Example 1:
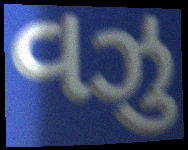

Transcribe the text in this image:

વઝુ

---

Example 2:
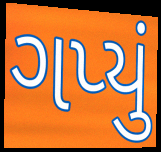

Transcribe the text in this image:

ગપ્યું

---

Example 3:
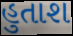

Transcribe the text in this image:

હુતાશ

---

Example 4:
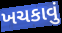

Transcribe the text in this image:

ખચકાવું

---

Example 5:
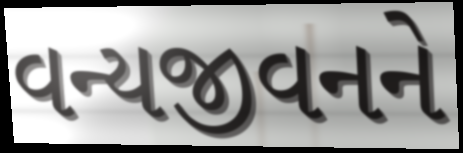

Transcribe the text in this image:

વન્યજીવનને